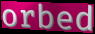
orbed